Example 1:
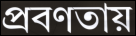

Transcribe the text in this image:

প্রবণতায়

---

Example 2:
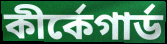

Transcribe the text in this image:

কীর্কেগার্ড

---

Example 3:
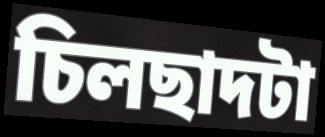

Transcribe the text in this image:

চিলছাদটা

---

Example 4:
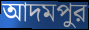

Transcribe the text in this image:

আদমপুর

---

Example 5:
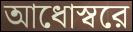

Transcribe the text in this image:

আধোস্বরে